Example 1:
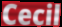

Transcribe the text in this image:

Cecil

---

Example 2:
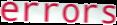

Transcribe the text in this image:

errors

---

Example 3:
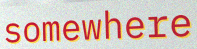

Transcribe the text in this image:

somewhere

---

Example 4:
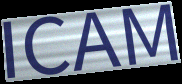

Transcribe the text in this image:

ICAM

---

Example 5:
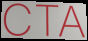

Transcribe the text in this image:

CTA